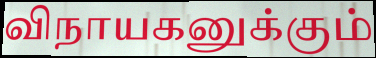
விநாயகனுக்கும்